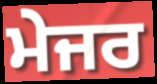
ਮੇਜਰ